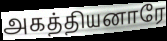
அகத்தியனாரே